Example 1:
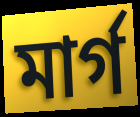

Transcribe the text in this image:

মার্গ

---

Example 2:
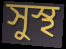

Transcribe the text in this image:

সুস্থ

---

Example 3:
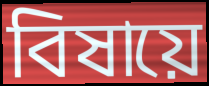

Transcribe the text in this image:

বিষায়ে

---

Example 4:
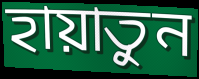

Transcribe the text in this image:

হায়াতুন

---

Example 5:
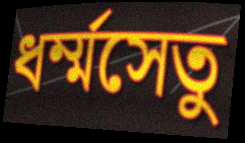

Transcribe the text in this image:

ধর্ম্মসেতু